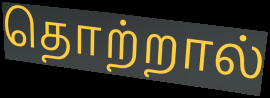
தொற்றால்